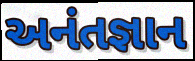
અનંતજ્ઞાન